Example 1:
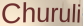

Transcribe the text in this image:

Churuli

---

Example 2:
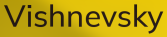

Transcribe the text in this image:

Vishnevsky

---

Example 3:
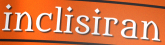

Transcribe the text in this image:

inclisiran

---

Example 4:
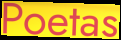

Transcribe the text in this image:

Poetas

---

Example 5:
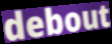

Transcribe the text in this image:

debout